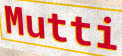
Mutti